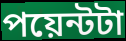
পয়েন্টটা